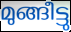
മുങ്ങീട്ടു